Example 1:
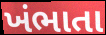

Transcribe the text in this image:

ખંભાતા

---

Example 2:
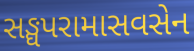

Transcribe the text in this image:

સઙ્ઘપરામાસવસેન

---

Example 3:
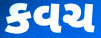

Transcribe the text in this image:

કવચ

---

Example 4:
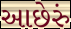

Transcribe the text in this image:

આછેરું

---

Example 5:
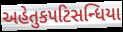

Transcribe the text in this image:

અહેતુકપટિસન્ધિયા